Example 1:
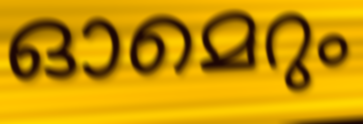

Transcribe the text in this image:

ഓമെറും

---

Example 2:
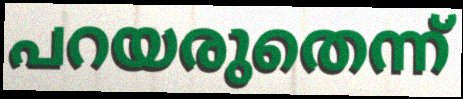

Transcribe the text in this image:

പറയരുതെന്ന്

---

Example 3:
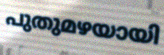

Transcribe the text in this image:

പുതുമഴയായി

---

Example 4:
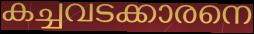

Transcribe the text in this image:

കച്ചവടക്കാരനെ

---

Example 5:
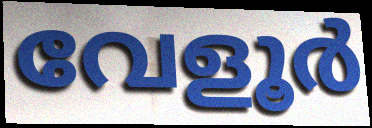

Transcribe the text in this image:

വേളൂർ